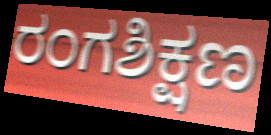
ರಂಗಶಿಕ್ಷಣ